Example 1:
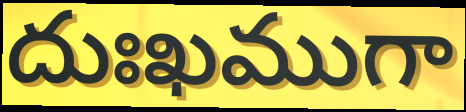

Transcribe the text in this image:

దుఃఖముగా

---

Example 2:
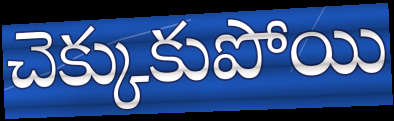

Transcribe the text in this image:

చెక్కుకుపోయి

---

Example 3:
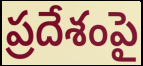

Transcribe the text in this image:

ప్రదేశంపై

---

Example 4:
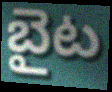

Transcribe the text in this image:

బైట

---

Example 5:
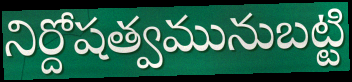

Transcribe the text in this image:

నిర్దోషత్వమునుబట్టి